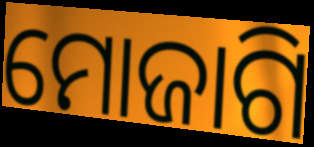
ମୋଜାଗି